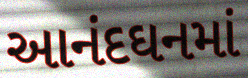
આનંદઘનમાં